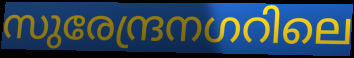
സുരേന്ദ്രനഗറിലെ